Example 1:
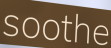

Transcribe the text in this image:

soothe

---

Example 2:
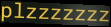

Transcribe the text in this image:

plzzzzzzz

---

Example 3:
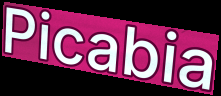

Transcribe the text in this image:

Picabia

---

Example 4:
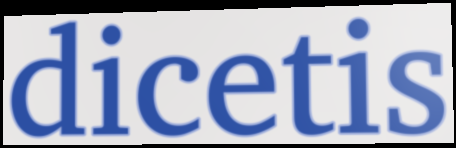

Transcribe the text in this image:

dicetis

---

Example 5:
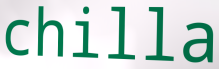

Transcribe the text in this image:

chilla